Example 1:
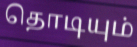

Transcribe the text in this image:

தொடியும்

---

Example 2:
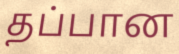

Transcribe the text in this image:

தப்பான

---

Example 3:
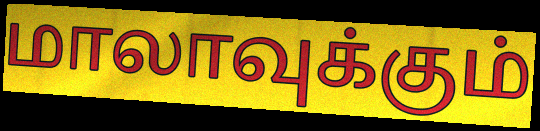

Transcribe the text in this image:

மாலாவுக்கும்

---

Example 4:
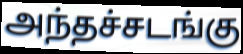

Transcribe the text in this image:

அந்தச்சடங்கு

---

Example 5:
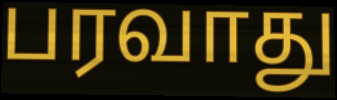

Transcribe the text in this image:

பரவாது